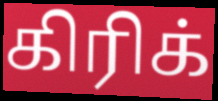
கிரிக்